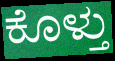
ಕೊಳ್ತು